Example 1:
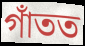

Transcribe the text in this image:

গাঁতত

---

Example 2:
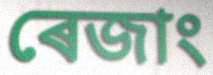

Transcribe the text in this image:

ৰেজাং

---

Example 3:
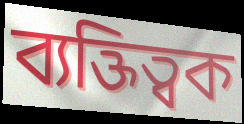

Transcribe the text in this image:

ব্যক্তিত্বক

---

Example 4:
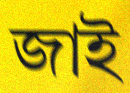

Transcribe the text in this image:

জাই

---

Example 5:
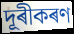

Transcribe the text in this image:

দূৰীকৰণ